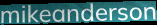
mikeanderson